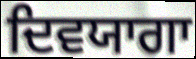
ਦਿਵਯਾਗਾ